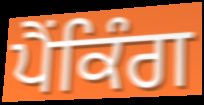
ਪੈਂਕਿੰਗ